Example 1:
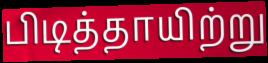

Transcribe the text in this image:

பிடித்தாயிற்று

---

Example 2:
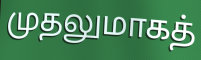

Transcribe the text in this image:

முதலுமாகத்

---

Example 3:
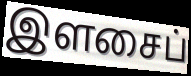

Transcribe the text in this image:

இளசைப்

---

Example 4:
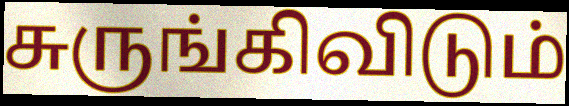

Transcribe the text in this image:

சுருங்கிவிடும்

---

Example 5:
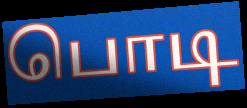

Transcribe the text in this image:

பொடி